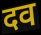
दव